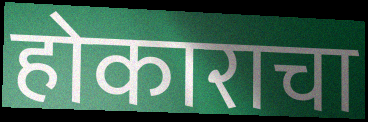
होकाराचा